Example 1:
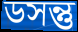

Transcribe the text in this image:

ডসন্তু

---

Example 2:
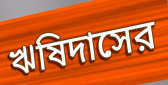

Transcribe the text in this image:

ঋষিদাসের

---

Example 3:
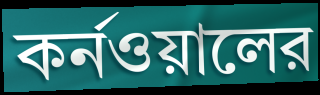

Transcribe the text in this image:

কর্নওয়ালের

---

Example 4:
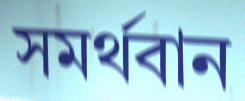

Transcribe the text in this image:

সমর্থবান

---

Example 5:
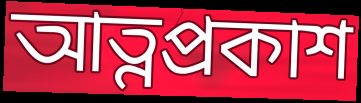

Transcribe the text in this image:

আত্নপ্রকাশ